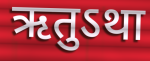
ऋतुऽथा